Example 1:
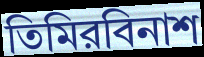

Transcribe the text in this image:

তিমিরবিনাশ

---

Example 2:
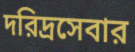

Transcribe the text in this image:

দরিদ্রসেবার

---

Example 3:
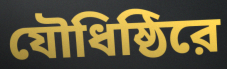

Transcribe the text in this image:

যৌধিষ্ঠিরে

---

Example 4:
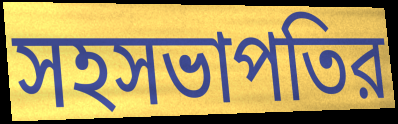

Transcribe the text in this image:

সহসভাপতির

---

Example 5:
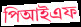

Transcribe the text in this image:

পিআইএফ